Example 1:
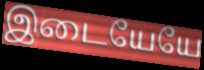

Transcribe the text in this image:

இடையேயே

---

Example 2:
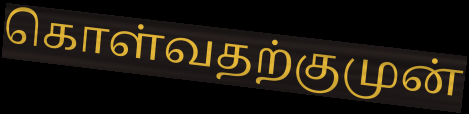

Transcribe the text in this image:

கொள்வதற்குமுன்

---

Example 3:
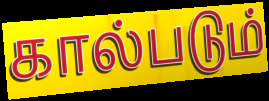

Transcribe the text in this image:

கால்படும்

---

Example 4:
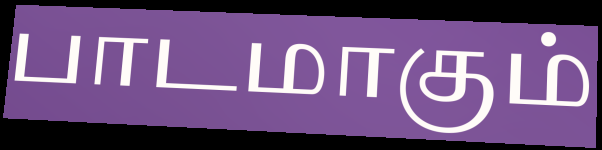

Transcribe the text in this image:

பாடமாகும்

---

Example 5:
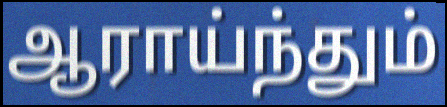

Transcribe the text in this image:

ஆராய்ந்தும்